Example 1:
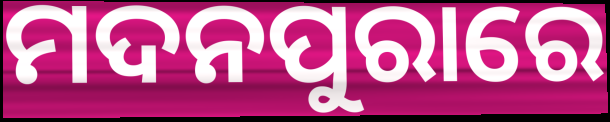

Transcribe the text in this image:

ମଦନପୁରାରେ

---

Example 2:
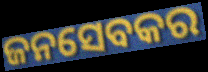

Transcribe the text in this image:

ଜନସେବକର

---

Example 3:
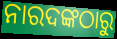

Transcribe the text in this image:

ନାରଦଙ୍କଠାରୁ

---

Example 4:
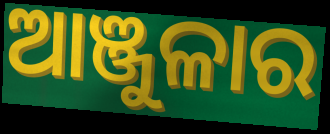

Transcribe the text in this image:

ଆଞ୍ଜୁଳାର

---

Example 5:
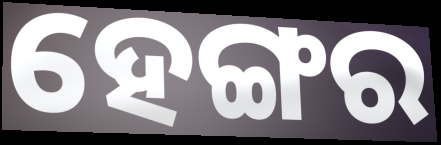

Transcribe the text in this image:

ହେଙ୍ଗର